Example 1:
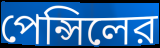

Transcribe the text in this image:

পেন্সিলের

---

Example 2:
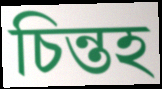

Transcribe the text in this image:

চিন্তহ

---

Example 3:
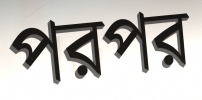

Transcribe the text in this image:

পরপর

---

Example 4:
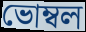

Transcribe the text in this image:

ভোম্বল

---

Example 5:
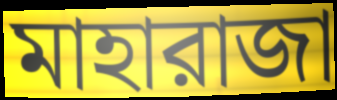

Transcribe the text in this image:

মাহারাজা